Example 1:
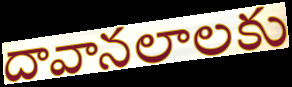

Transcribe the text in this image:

దావానలాలకు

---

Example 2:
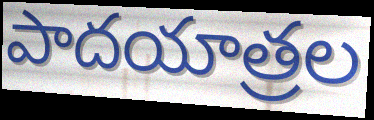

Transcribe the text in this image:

పాదయాత్రల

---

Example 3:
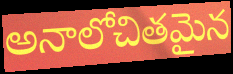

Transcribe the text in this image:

అనాలోచితమైన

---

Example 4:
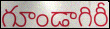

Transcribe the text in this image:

గూండాగిరీ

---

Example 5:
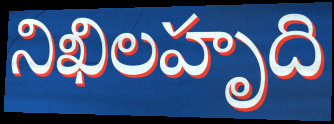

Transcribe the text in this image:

నిఖిలహృది